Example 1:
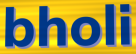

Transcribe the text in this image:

bholi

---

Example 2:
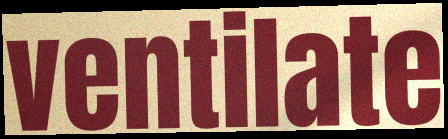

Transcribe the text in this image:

ventilate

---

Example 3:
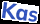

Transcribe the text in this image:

Kas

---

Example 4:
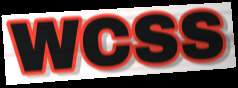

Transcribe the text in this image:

WCSS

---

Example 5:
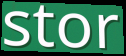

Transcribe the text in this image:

stor